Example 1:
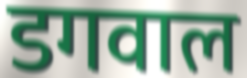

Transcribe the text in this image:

डगवाल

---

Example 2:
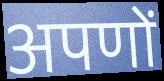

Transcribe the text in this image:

अपणों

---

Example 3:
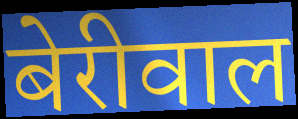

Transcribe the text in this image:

बेरीवाल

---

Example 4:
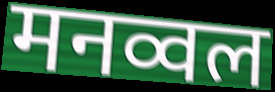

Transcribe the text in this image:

मनव्वल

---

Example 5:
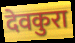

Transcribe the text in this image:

देवकुरा